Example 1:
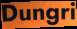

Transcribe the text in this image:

Dungri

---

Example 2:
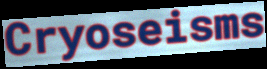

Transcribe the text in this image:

Cryoseisms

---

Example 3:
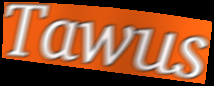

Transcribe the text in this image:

Tawus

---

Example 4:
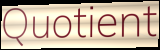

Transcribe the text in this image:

Quotient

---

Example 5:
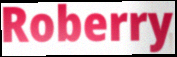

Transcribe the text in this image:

Roberry